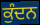
ਕੁੰਦਨ